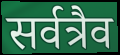
सर्वत्रैव